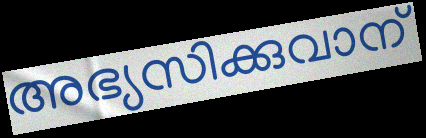
അഭ്യസിക്കുവാന്